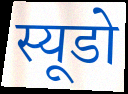
स्यूडो